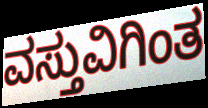
ವಸ್ತುವಿಗಿಂತ